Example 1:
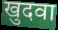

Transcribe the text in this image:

खुदवा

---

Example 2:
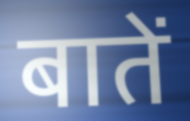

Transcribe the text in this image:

बातें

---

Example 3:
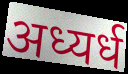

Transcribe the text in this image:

अध्यर्ध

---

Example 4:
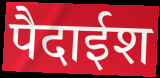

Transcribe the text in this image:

पैदाईश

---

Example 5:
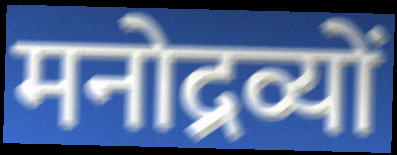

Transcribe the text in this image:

मनोद्रव्यों